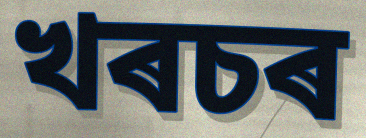
খৰচৰ